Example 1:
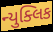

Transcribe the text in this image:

ન્યુક્લિક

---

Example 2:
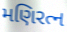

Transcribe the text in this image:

મણિરત્ન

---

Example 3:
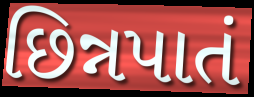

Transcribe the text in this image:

છિન્નપાતં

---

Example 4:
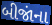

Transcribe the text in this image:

બીજાંના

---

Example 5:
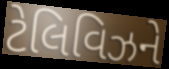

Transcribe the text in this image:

ટેલિવિઝને